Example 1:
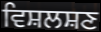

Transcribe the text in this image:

ਵਿਸ਼ਲਸ਼ਣ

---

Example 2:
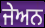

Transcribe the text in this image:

ਜੇਅਨ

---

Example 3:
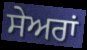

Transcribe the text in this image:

ਸੇਅਰਾਂ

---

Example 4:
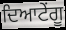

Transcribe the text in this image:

ਦਿਆਟੇਂਗੂ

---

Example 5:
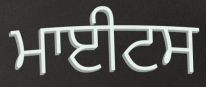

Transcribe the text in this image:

ਮਾਈਟਸ